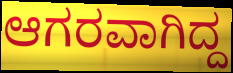
ಆಗರವಾಗಿದ್ದ